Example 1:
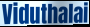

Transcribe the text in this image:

Viduthalai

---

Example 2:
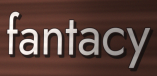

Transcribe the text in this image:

fantacy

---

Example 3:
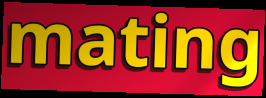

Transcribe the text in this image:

mating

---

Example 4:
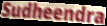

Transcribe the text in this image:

Sudheendra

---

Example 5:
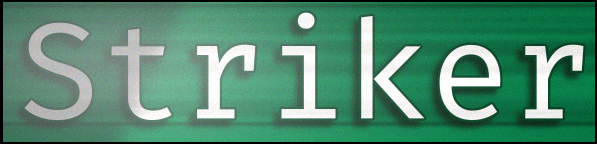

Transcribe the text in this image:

Striker